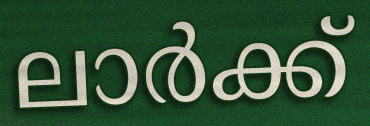
ലാർക്ക്